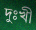
দুঃখী